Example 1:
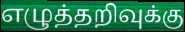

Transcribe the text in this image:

எழுத்தறிவுக்கு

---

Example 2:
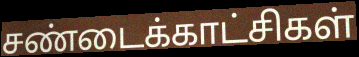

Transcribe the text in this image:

சண்டைக்காட்சிகள்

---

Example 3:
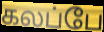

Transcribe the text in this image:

கலப்பே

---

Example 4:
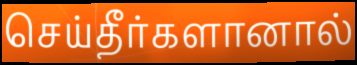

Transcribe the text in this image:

செய்தீர்களானால்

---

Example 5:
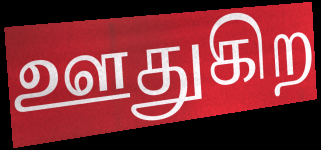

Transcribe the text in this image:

ஊதுகிற